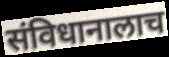
संविधानालाच